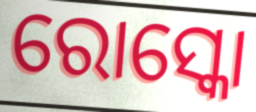
ରୋସ୍କୋ